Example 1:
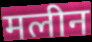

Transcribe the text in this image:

मलीन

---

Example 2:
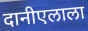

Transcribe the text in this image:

दानीएलाला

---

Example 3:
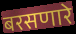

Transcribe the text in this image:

बरसणारे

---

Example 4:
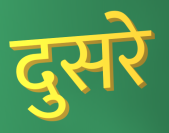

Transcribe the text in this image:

दुसरे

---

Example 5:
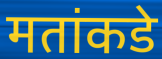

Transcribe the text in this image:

मतांकडे